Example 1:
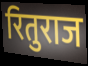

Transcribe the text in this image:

रितुराज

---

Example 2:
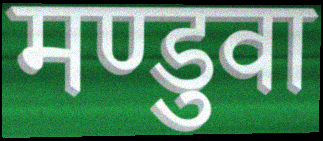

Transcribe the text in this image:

मण्डुवा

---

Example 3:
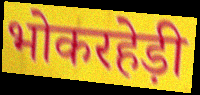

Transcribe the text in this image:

भोकरहेड़ी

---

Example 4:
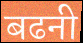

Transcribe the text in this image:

बढनी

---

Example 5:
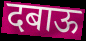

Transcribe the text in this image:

दबाऊ